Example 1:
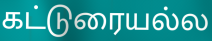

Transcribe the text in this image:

கட்டுரையல்ல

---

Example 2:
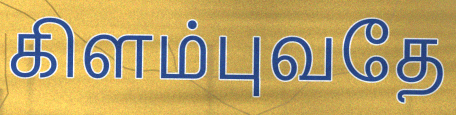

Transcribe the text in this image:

கிளம்புவதே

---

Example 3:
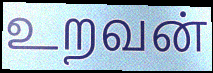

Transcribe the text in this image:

உறவன்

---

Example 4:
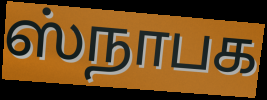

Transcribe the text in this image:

ஸ்நாபக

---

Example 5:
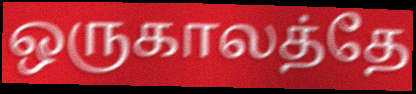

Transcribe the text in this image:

ஒருகாலத்தே